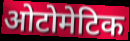
ओटोमेटिक